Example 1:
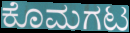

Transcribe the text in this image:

ಕೊಮಗಟ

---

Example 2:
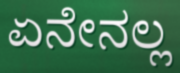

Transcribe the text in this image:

ಏನೇನಲ್ಲ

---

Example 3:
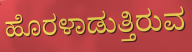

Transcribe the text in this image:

ಹೊರಳಾಡುತ್ತಿರುವ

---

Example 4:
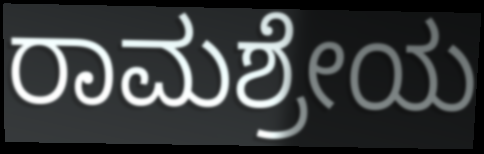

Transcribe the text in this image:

ರಾಮಶ್ರೇಯ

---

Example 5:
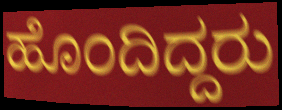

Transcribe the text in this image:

ಹೊಂದಿದ್ದರು